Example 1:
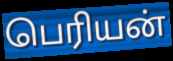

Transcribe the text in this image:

பெரியன்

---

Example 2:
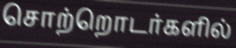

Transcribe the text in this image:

சொற்றொடர்களில்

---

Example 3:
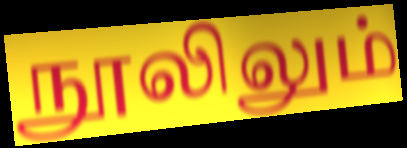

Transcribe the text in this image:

நூலிலும்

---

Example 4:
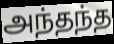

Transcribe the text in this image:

அந்தந்த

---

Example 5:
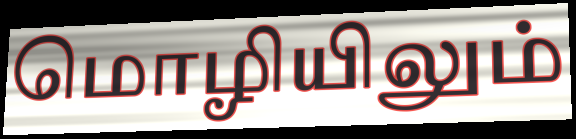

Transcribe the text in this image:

மொழியிலும்